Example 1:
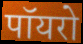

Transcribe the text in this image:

पॉयरो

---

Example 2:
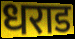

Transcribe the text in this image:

धराड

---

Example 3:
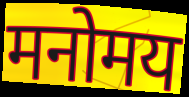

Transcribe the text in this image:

मनोमय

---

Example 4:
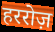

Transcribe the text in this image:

हररोज़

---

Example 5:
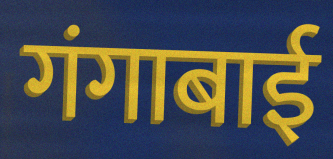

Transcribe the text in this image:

गंगाबाई